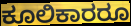
ಕೂಲಿಕಾರರೂ